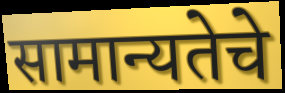
सामान्यतेचे